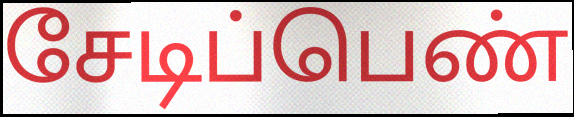
சேடிப்பெண்